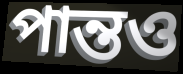
পান্তও